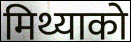
मिथ्याको